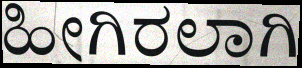
ಹೀಗಿರಲಾಗಿ